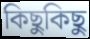
কিছুকিছু